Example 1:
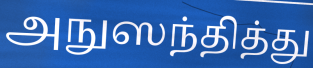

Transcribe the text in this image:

அநுஸந்தித்து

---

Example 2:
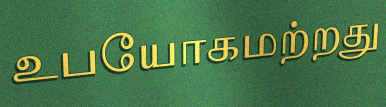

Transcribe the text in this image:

உபயோகமற்றது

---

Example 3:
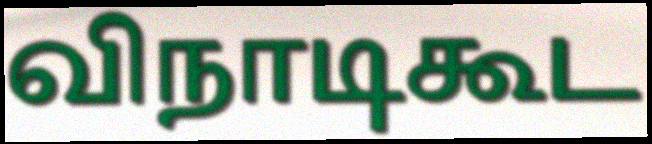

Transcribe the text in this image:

விநாடிகூட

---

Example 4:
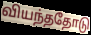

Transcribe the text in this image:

வியந்ததோடு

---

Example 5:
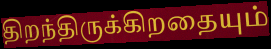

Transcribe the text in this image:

திறந்திருக்கிறதையும்